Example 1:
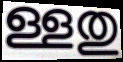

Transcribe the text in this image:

ള്ളതു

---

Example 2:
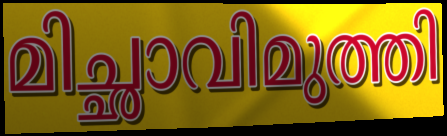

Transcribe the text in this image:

മിച്ഛാവിമുത്തി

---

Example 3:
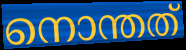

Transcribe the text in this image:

നൊന്തത്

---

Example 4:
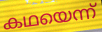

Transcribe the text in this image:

കഥയെന്ന്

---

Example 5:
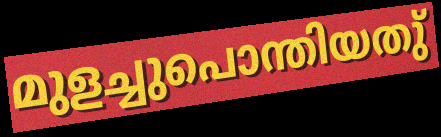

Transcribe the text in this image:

മുളച്ചുപൊന്തിയതു്